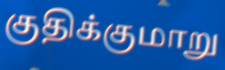
குதிக்குமாறு